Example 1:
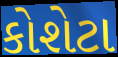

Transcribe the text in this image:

કોશેટા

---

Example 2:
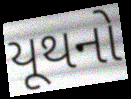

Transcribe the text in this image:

યૂથનો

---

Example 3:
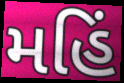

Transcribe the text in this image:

મહિં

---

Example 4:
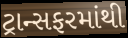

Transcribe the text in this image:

ટ્રાન્સફરમાંથી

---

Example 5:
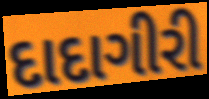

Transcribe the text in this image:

દાદાગીરી